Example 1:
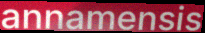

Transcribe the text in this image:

annamensis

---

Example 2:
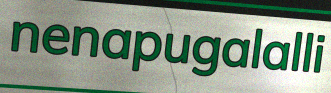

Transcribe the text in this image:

nenapugalalli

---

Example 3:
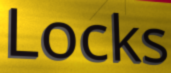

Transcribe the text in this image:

Locks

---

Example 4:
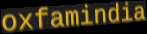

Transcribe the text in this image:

oxfamindia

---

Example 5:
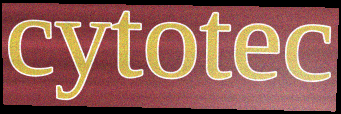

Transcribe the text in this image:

cytotec